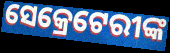
ସେକ୍ରେଟେରୀଙ୍କ